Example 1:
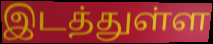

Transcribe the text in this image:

இடத்துள்ள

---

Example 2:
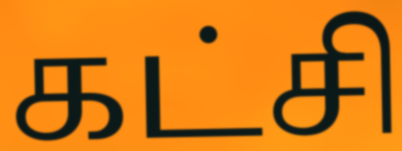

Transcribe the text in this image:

கட்சி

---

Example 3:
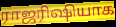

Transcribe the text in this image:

ராஜரிஷியாக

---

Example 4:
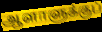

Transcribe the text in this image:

ஆளாளுக்குப்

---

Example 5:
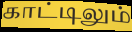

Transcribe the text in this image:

காட்டிலும்